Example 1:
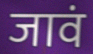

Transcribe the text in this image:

जावं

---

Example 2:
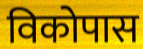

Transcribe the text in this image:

विकोपास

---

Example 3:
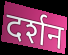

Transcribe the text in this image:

दर्शन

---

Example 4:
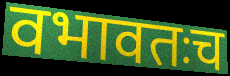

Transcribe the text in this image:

वभावतःच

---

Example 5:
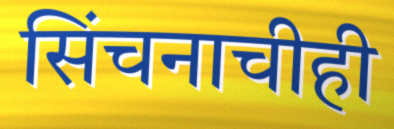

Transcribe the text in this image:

सिंचनाचीही